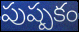
పుష్పకం